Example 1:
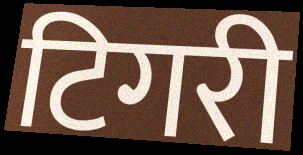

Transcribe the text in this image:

टिगरी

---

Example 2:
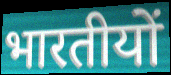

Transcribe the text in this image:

भारतीयों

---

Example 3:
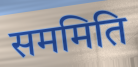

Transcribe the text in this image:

सममिति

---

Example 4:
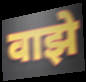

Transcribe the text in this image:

वाझे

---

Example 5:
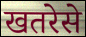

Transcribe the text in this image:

खतरेसे